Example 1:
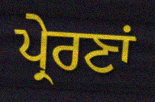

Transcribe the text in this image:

ਪ੍ਰੇਰਣਾਂ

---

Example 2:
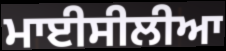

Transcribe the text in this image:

ਮਾਈਸੀਲੀਆ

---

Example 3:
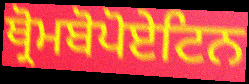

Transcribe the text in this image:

ਥ੍ਰੋਮਬੋਪੋਏਟਿਨ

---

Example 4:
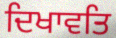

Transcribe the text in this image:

ਦਿਖਾਵਤਿ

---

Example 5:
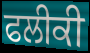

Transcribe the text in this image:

ਫਲੀਕੀ